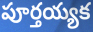
పూర్తయ్యక